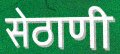
सेठाणी